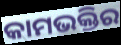
କାମଭକ୍ତିର